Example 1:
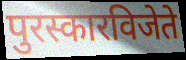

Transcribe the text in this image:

पुरस्कारविजेते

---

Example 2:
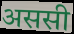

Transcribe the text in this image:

अससी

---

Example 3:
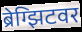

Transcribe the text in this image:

ब्रेग्झिटवर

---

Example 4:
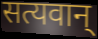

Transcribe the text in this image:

सत्यवान्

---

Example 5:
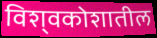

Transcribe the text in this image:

विश्वकोशातील